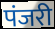
पंजरी